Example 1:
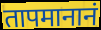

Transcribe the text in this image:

तापमानानं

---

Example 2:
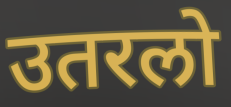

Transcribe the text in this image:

उतरलो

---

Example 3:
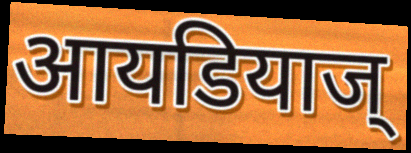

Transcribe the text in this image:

आयडियाज्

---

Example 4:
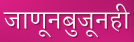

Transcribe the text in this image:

जाणूनबुजूनही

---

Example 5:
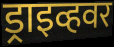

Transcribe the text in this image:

ड्राइव्हवर